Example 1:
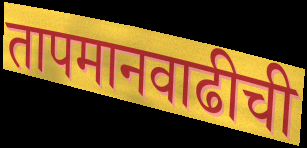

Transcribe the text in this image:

तापमानवाढीची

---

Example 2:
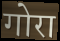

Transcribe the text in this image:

गोरा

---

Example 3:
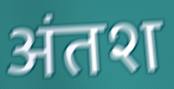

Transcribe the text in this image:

अंतश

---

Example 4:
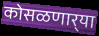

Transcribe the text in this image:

कोसळणार्‍या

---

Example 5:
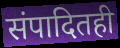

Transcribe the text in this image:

संपादितही